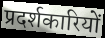
प्रदर्शकारियों